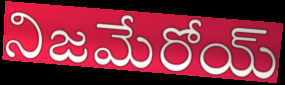
నిజమేరోయ్